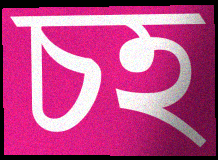
চহ